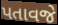
પતાવજે